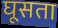
घूसता